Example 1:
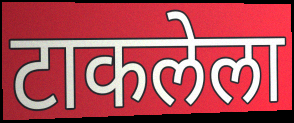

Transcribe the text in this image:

टाकलेला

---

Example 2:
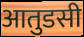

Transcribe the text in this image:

आतुडसी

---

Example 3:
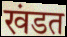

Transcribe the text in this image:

खंडत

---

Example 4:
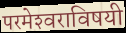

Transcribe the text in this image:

परमेश्वराविषयी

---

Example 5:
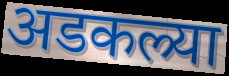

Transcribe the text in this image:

अडकल्या